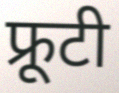
फ्रूटी